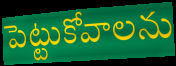
పెట్టుకోవాలను